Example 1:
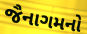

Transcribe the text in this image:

જૈનાગમનો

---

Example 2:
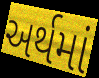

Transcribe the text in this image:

અર્થમાં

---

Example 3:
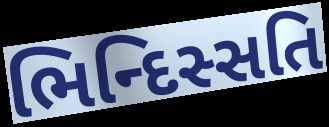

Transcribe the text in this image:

ભિન્દિસ્સતિ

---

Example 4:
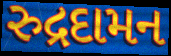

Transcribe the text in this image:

રુદ્રદામન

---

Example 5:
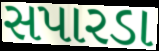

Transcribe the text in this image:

સપારડા